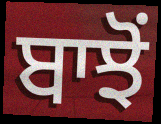
ਬਾਝੋਂ